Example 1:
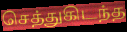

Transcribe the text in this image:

செத்துகிடந்த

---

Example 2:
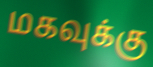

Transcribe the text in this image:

மகவுக்கு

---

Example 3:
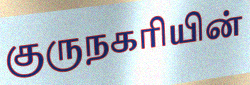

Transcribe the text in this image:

குருநகரியின்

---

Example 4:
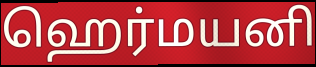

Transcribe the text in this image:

ஹெர்மயனி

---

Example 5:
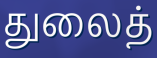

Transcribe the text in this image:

துலைத்